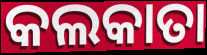
କଲକାତା